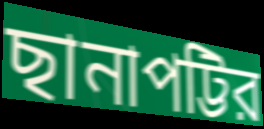
ছানাপট্টির